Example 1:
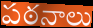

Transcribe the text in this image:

పఠనాలు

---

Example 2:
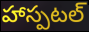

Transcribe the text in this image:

హాస్పటల్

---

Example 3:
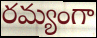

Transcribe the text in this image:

రమ్యంగా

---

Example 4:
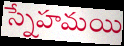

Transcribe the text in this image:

స్నేహమయి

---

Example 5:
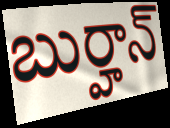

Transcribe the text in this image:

బుర్హాన్